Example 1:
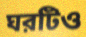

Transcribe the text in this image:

ঘরটিও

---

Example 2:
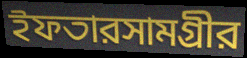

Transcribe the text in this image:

ইফতারসামগ্রীর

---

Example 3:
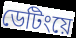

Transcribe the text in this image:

ডেটিংয়ে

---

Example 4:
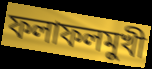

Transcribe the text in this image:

ফলাফলমুখী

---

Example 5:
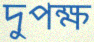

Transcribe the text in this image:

দুপক্ষ